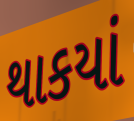
થાકયાં